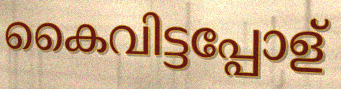
കൈവിട്ടപ്പോള്